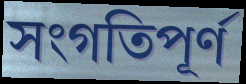
সংগতিপূৰ্ণ